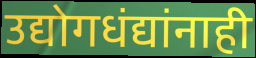
उद्योगधंद्यांनाही